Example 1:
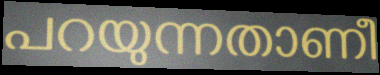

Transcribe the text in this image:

പറയുന്നതാണീ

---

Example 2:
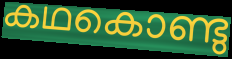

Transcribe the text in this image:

കഥകൊണ്ടു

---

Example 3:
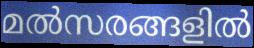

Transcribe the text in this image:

മൽസരങ്ങളിൽ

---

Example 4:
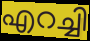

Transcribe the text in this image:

എറച്ചി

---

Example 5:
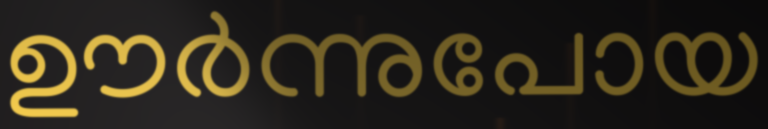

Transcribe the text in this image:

ഊർന്നുപോയ